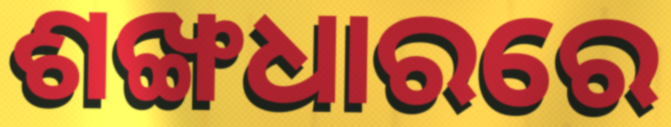
ଶଙ୍ଖଧାରରେ